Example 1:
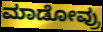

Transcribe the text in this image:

ಮಾಡೋವ್ರು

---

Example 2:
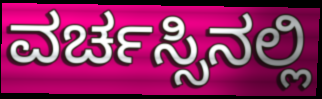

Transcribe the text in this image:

ವರ್ಚಸ್ಸಿನಲ್ಲಿ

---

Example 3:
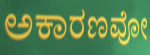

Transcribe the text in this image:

ಅಕಾರಣವೋ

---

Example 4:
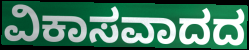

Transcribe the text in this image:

ವಿಕಾಸವಾದದ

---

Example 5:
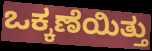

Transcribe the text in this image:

ಒಕ್ಕಣೆಯಿತ್ತು